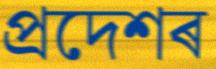
প্ৰদেশৰ